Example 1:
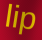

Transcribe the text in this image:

lip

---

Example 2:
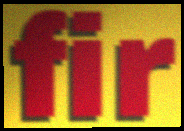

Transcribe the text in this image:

fir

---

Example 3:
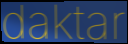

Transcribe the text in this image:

daktar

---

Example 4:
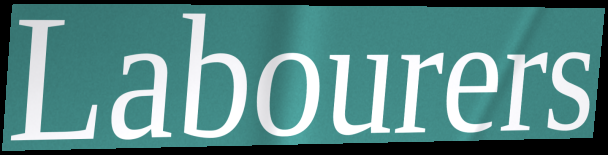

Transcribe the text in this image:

Labourers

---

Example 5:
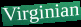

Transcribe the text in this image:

Virginian